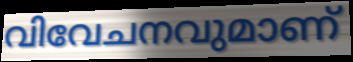
വിവേചനവുമാണ്